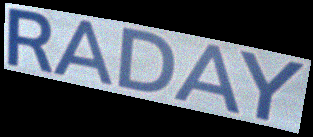
RADAY